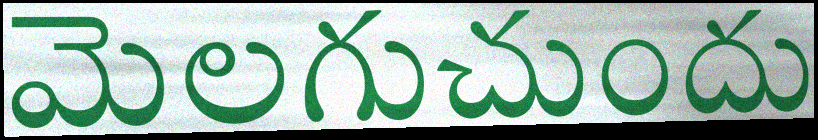
మెలగుచుందు